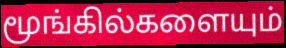
மூங்கில்களையும்